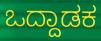
ಒದ್ದಾಡಕ